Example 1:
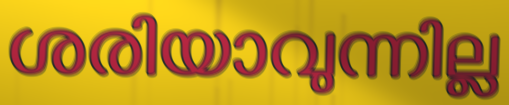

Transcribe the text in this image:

ശരിയാവുന്നില്ല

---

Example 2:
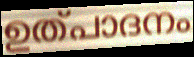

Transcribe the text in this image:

ഉത്പാദനം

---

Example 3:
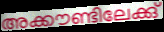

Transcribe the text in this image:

അക്കൗണ്ടിലേക്കു്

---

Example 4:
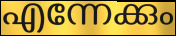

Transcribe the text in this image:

എന്നേക്കും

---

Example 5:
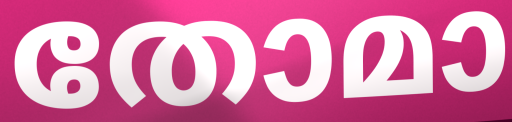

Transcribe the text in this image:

തോമാ